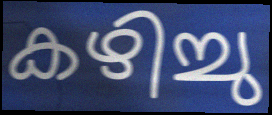
കഴിച്ചു